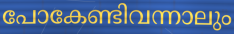
പോകേണ്ടിവന്നാലും